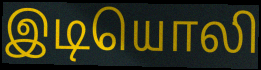
இடியொலி